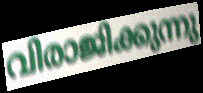
വിരാജിക്കുന്നു